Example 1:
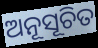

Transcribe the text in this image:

ଅନୂସୂଚିତ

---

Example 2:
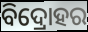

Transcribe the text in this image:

ବିଦ୍ରୋହର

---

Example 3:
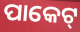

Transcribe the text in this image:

ପାକେଟ୍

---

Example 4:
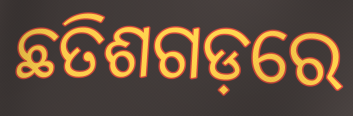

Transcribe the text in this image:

ଛତିଶଗଡ଼ରେ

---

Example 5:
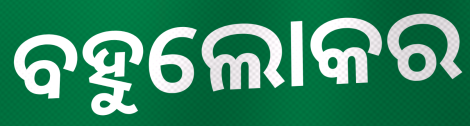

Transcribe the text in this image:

ବହୁଲୋକର